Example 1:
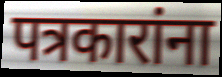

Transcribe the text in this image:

पत्रकारांना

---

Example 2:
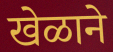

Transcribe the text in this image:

खेळाने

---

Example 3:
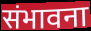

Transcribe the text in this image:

संभावना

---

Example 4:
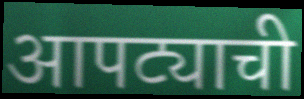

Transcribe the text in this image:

आपट्याची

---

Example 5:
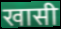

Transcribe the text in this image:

खासी